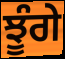
ਝੂੰਗੇ